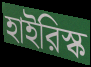
হাইরিস্ক